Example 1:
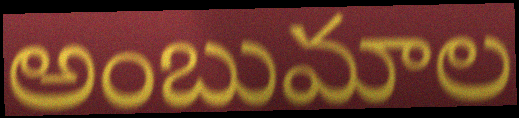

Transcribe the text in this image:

అంబుమాల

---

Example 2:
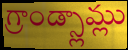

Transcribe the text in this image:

గ్రాండ్స్లామ్లు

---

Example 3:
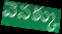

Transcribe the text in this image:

వెనక్కు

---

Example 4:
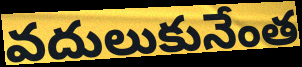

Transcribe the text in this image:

వదులుకునేంత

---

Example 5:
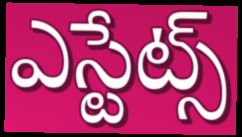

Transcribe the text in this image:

ఎస్టేట్స్